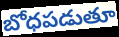
బోధపడుతూ